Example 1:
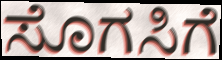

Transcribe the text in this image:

ಸೊಗಸಿಗೆ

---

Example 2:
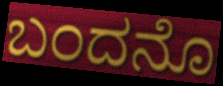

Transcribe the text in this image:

ಬಂದನೊ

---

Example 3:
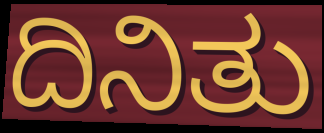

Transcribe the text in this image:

ದಿನಿತು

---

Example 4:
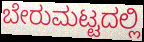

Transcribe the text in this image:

ಬೇರುಮಟ್ಟದಲ್ಲಿ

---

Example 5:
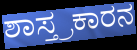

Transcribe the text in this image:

ಶಾಸ್ತ್ರಕಾರನ